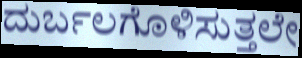
ದುರ್ಬಲಗೊಳಿಸುತ್ತಲೇ